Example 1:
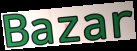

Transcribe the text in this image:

Bazar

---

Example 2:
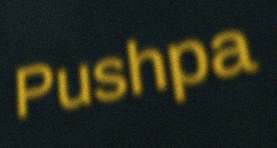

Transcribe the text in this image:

Pushpa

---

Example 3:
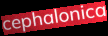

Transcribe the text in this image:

cephalonica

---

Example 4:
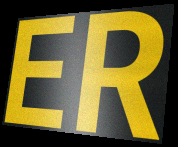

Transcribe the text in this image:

ER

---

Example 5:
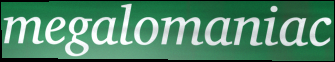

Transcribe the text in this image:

megalomaniac